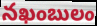
నఖంబులం